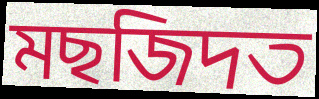
মছজিদত